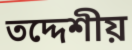
তদ্দেশীয়